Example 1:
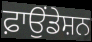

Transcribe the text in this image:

ਫ਼ਾਉਂਡੇਸ਼ਨ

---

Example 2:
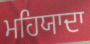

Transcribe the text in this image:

ਮਹਿਯਾਦਾ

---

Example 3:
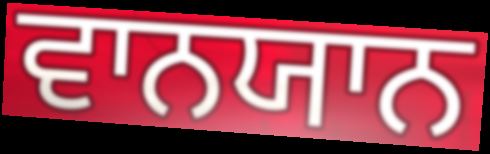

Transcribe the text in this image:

ਵਾਨਯਾਨ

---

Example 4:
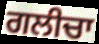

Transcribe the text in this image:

ਗਲੀਚਾ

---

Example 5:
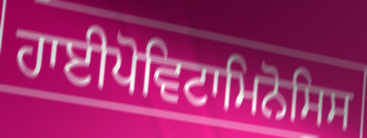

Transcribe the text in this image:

ਹਾਈਪੋਵਿਟਾਮਿਨੋਸਿਸ